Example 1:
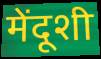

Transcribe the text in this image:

मेंदूशी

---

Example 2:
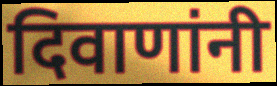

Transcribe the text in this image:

दिवाणांनी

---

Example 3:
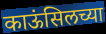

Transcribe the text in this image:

काऊंसिलच्या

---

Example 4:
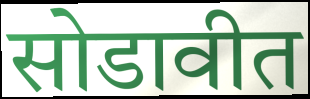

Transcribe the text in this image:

सोडावीत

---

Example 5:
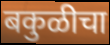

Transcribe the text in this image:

बकुळीचा